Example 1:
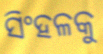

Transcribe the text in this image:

ସିଂହଳକୁ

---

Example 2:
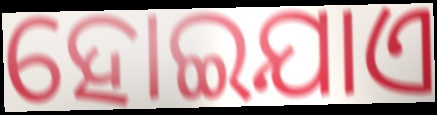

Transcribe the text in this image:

ହୋଇଯାଏ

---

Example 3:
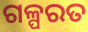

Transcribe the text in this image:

ଗଳ୍ପରତ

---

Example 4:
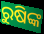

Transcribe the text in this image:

ରୁଷିଙ୍କ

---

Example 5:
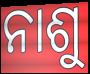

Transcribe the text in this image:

ନାଶୁ